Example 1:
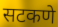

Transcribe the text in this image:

सटकणे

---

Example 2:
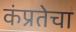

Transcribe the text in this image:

कंप्रतेचा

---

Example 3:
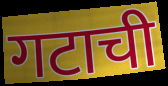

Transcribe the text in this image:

गटाची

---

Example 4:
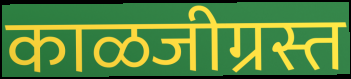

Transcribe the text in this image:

काळजीग्रस्त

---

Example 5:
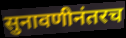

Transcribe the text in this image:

सुनावणीनंतरच